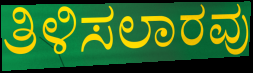
ತಿಳಿಸಲಾರವು